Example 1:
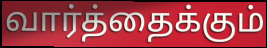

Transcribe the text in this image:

வார்த்தைக்கும்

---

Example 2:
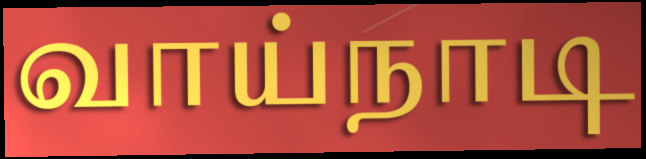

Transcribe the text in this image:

வாய்நாடி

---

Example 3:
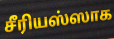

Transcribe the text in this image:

சீரியஸ்ஸாக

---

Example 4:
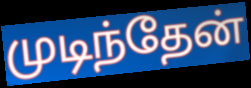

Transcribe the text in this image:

முடிந்தேன்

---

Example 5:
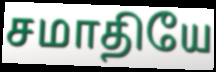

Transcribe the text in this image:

சமாதியே